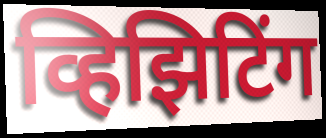
व्हिझिटिंग